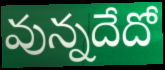
వున్నదేదో